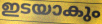
ഇടയാകും